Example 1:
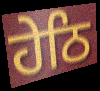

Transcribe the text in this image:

ਹੇਠਿ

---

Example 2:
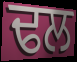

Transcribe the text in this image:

ਢਲ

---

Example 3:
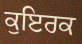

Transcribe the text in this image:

ਕੁਇਰਕ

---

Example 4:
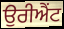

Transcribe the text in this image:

ਉਰੀਐਂਟ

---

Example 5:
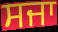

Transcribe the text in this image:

ਸਜਾ